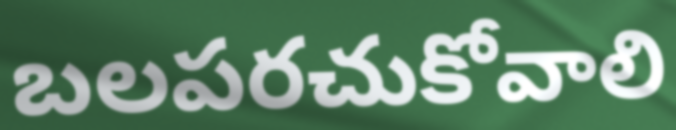
బలపరచుకోవాలి